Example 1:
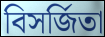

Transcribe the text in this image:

বিসর্জিতা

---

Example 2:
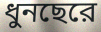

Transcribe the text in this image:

ধুনছেরে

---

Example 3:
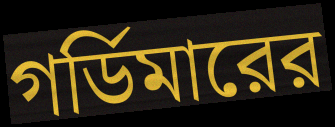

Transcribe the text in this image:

গর্ডিমারের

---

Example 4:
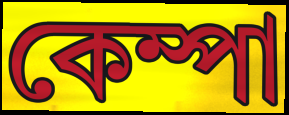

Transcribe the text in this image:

কেম্পা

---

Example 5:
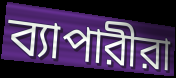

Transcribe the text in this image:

ব্যাপারীরা